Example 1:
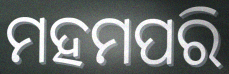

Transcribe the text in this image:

ମହମପରି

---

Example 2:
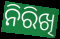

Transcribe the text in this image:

ନିରିଖି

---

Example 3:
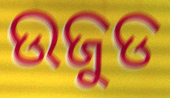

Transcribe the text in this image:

ଉଜୁଡ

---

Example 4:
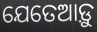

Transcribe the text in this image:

ଯେତେଆଡ଼ୁ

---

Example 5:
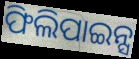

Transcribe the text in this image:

ଫିଲିପାଇନ୍ସ